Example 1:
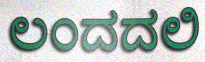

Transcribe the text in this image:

ಲಂದದಲಿ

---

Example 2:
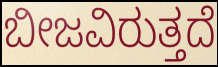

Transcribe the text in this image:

ಬೀಜವಿರುತ್ತದೆ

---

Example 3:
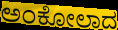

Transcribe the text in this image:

ಅಂಕೋಲಾದ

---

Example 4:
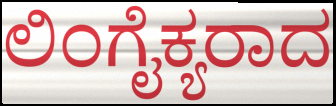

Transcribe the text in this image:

ಲಿಂಗೈಕ್ಯರಾದ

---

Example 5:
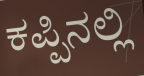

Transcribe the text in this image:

ಕಪ್ಪಿನಲ್ಲಿ